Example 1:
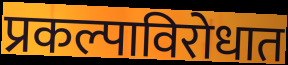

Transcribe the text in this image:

प्रकल्पाविरोधात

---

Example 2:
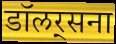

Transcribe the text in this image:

डॉलर्सना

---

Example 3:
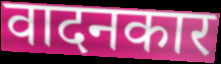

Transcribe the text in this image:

वादनकार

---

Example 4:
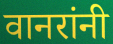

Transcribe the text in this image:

वानरांनी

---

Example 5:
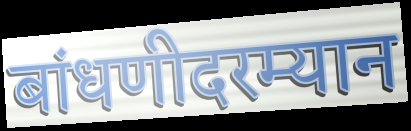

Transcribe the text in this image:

बांधणीदरम्यान